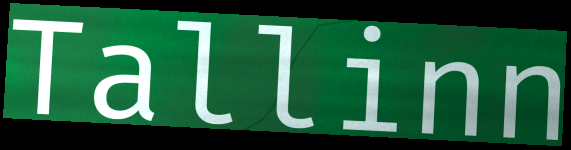
Tallinn